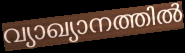
വ്യാഖ്യാനത്തിൽ